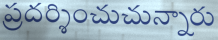
ప్రదర్శించుచున్నారు